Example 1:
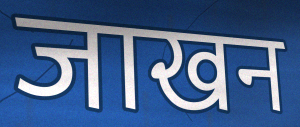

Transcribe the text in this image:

जाखन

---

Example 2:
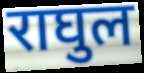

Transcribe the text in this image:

राघुल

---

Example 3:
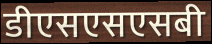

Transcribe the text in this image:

डीएसएसएसबी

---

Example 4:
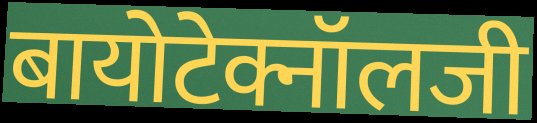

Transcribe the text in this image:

बायोटेक्नॉलजी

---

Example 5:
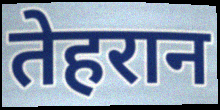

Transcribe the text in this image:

तेहरान